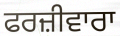
ਫਰਜ਼ੀਵਾਰਾ